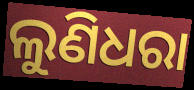
ଲୁଣିଧରା